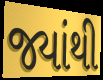
જ્યાંથી